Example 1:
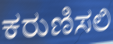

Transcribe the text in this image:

ಕರುಣಿಸಲಿ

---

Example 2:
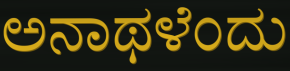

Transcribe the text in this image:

ಅನಾಥಳೆಂದು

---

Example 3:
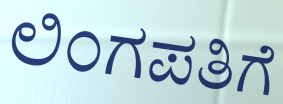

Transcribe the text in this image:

ಲಿಂಗಪತಿಗೆ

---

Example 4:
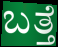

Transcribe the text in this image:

ಬತ್ತೆ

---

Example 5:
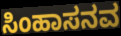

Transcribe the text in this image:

ಸಿಂಹಾಸನವ